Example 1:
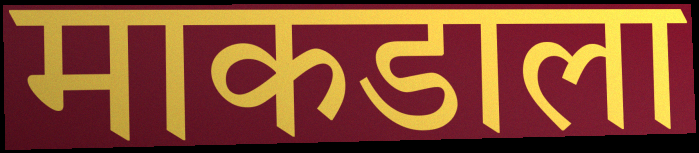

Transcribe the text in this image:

माकडाला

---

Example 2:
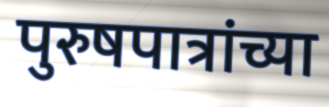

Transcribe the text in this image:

पुरुषपात्रांच्या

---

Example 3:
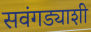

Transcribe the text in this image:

सवंगड्याशी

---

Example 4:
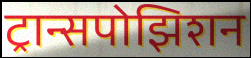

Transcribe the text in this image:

ट्रान्सपोझिशन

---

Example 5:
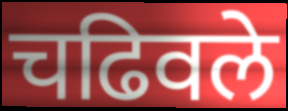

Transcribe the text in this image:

चढिवले